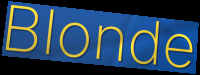
Blonde